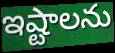
ఇష్టాలను